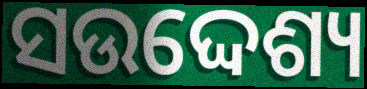
ସଉଦ୍ଦେଶ୍ୟ